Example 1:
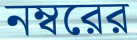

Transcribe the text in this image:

নম্বরের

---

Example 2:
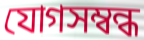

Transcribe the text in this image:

যোগসম্বন্ধ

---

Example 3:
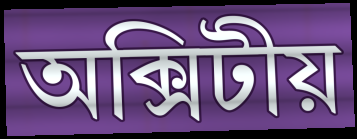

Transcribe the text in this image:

অক্সিটীয়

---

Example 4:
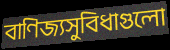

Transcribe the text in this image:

বাণিজ্যসুবিধাগুলো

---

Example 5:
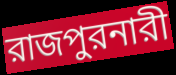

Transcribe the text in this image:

রাজপুরনারী